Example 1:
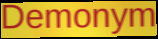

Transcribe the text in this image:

Demonym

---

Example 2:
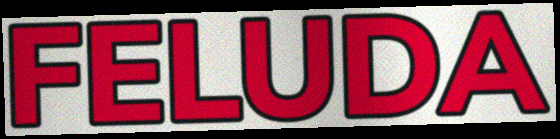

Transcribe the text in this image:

FELUDA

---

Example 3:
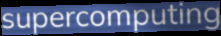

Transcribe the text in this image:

supercomputing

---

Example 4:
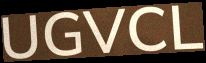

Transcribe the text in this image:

UGVCL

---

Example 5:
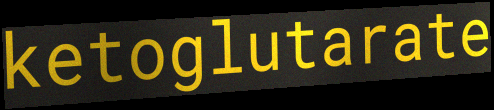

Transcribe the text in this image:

ketoglutarate